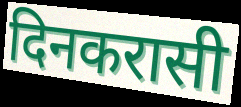
दिनकरासी